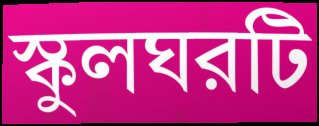
স্কুলঘরটি